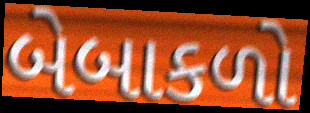
બેબાકળો